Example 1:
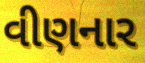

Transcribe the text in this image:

વીણનાર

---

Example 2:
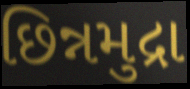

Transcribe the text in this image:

છિન્નમુદ્રા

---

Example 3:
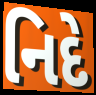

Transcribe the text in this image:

નિદે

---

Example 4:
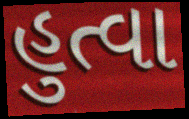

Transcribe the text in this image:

હુત્વા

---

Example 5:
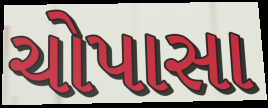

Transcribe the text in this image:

ચોપાસા